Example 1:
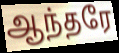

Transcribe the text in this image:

ஆந்தரே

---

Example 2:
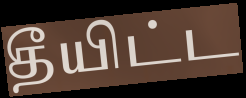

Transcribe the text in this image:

தீயிட்ட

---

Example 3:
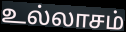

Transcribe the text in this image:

உல்லாசம்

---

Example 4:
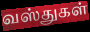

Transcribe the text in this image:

வஸ்துகள்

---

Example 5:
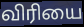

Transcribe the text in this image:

விரியை